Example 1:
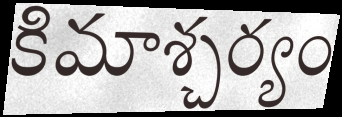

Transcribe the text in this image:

కిమాశ్చర్యం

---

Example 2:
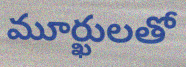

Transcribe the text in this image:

మూర్ఖులతో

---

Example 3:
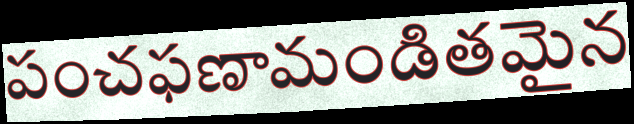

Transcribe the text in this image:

పంచఫణామండితమైన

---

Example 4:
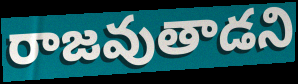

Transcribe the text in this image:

రాజవుతాడని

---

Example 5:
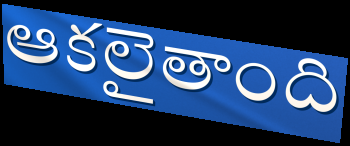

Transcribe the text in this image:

ఆకలైతాంది